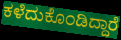
ಕಳೆದುಕೊಂಡಿದ್ದಾರೆ